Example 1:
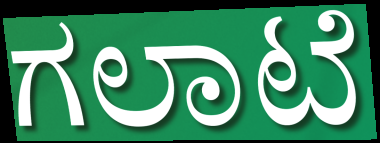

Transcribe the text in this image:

ಗಲಾಟೆ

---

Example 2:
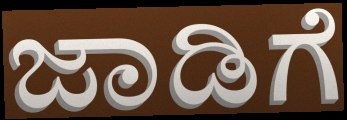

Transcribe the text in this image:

ಜಾಡಿಗೆ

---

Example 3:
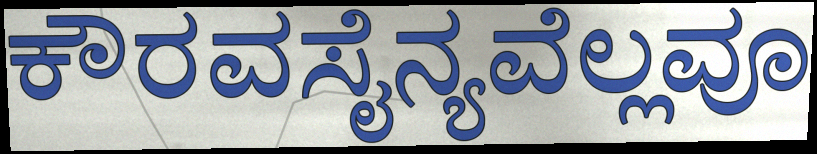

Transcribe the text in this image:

ಕೌರವಸೈನ್ಯವೆಲ್ಲವೂ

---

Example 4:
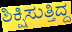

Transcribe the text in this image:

ಶಿಕ್ಷಿಸುತ್ತಿದ್ದ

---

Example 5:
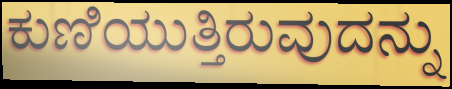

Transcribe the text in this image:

ಕುಣಿಯುತ್ತಿರುವುದನ್ನು